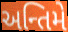
અન્તિમે